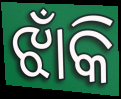
ଝାଁକି